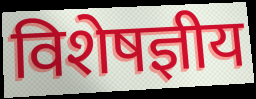
विशेषज्ञीय